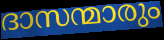
ദാസന്മാരും